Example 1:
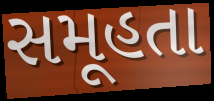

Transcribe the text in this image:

સમૂહતા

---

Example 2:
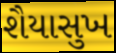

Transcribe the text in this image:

શૈયાસુખ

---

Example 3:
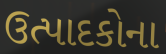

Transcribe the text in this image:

ઉત્પાદકોના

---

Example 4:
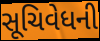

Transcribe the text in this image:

સૂચિવેધની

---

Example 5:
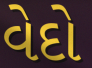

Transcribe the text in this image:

વેદો